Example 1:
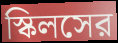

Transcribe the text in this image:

স্কিলসের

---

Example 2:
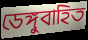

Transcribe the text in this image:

ডেঙ্গুবাহিত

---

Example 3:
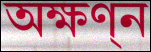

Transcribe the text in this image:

অক্ষণ্ন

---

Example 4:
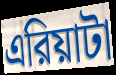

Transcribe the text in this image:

এরিয়াটা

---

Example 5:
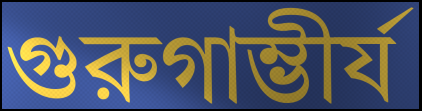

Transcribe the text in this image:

গুরুগাম্ভীর্য